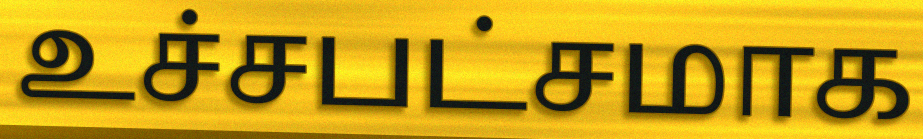
உச்சபட்சமாக